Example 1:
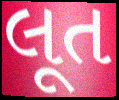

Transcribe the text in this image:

લૂત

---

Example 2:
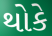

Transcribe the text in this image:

થોકે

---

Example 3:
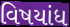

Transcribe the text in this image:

વિષયાંધ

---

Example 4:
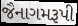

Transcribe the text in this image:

જૈનાગમરૂપી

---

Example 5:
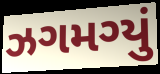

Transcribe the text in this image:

ઝગમગ્યું